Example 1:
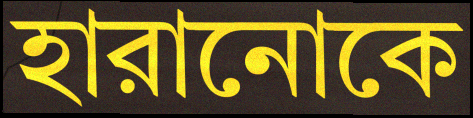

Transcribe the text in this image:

হারানোকে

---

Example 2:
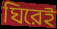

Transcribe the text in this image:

ঘিরেই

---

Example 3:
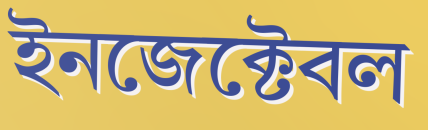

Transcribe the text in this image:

ইনজেক্টেবল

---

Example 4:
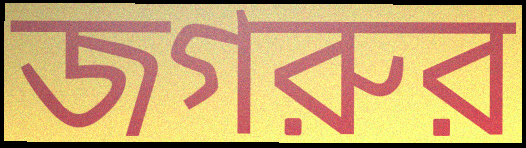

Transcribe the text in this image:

জগরুর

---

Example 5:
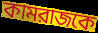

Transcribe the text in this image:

কামরাজকে